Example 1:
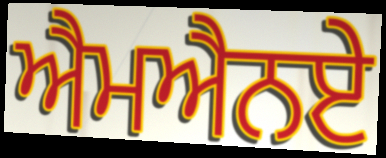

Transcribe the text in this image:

ਐਮਐਨਏ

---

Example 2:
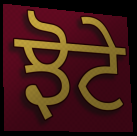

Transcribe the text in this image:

ਝੋਟੇ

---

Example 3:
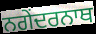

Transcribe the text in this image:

ਨਗੇਂਦਰਨਾਥ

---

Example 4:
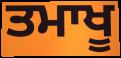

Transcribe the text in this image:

ਤਮਾਖੂ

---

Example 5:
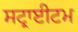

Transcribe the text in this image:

ਸਟ੍ਰਾਈਟਮ